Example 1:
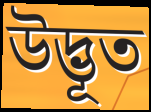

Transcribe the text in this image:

উদ্ভূত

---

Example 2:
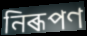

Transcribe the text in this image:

নিৰূপণ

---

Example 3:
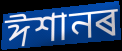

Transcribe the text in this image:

ঈশানৰ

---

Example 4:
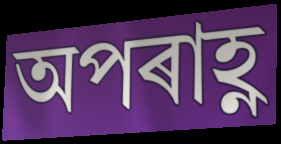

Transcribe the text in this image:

অপৰাহ্ণ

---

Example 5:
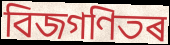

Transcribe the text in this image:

বিজগণিতৰ